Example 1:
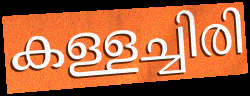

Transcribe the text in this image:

കള്ളച്ചിരി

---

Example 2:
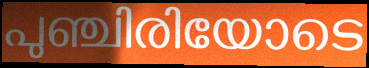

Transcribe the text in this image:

പുഞ്ചിരിയോടെ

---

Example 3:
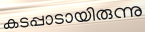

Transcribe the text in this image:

കടപ്പാടായിരുന്നു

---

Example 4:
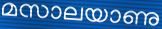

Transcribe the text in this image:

മസാലയാണു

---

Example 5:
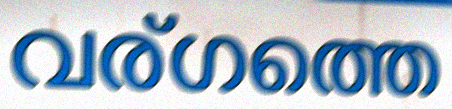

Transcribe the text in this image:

വര്ഗത്തെ